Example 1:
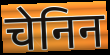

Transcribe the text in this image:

चेनिन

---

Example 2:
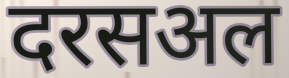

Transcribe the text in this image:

दरसअल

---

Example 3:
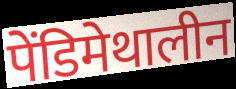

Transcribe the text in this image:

पेंडिमेथालीन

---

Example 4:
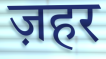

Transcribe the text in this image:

ज़हर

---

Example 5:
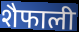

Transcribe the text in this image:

शैफाली